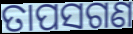
ତାପସଗଣ